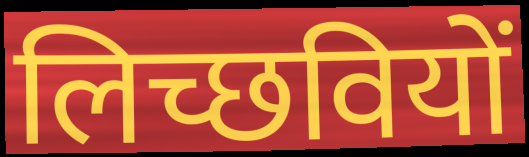
लिच्छवियों